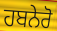
ਹਬਨੇਰੋ